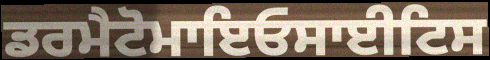
ਡਰਮੈਟੋਮਾਇਓਸਾਈਟਿਸ